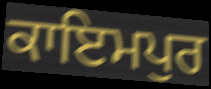
ਕਾਇਮਪੁਰ